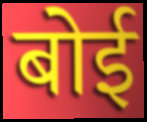
बोई